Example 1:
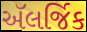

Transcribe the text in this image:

ઍલર્જિક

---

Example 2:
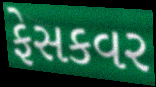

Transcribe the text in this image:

ફેસકવર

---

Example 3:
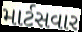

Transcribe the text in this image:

માર્ટસવાર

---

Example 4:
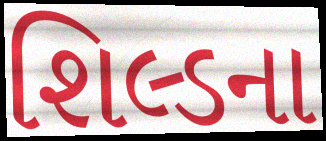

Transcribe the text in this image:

શિલ્ડના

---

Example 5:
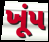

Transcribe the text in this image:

ખૂંપ